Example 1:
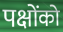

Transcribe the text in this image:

पक्षोंको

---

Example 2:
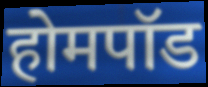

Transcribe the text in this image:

होमपॉड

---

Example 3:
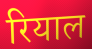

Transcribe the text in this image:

रियाल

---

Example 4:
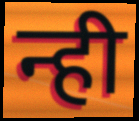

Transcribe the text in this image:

न्ही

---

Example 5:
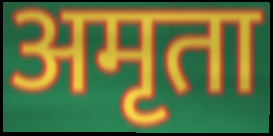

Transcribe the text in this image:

अमृता